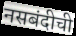
नसबंदीची